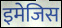
इमेजिस